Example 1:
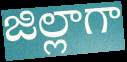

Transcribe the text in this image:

జిల్లాగా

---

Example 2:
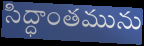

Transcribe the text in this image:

సిద్ధాంతమును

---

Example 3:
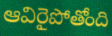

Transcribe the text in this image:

ఆవిరైపోతోంది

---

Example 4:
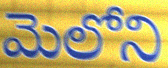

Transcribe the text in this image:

మెలోని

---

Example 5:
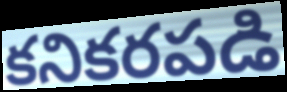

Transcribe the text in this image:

కనికరపడి